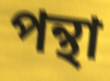
পন্থা